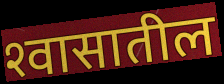
श्वासातील